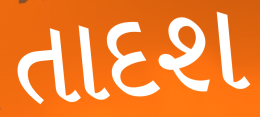
તાદશ